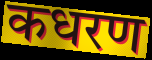
कधरण